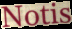
Notis